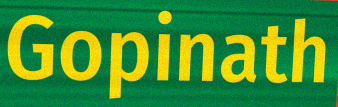
Gopinath